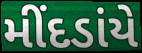
મીંદડાંયે